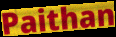
Paithan